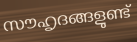
സൗഹൃദങ്ങളുണ്ട്